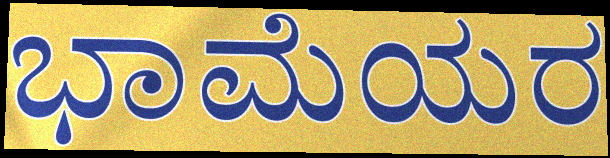
ಭಾಮೆಯರ